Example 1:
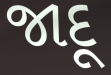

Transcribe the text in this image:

જાદૂ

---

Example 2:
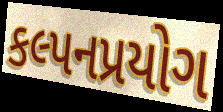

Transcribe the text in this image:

કલ્પનપ્રયોગ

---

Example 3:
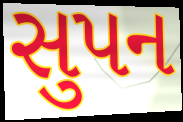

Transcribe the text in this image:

સુપન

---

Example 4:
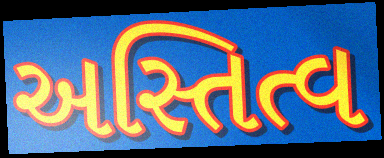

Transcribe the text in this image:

અસ્તિત્વ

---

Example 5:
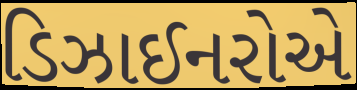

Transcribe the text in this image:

ડિઝાઈનરોએ